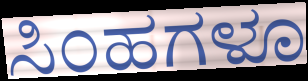
ಸಿಂಹಗಳೂ